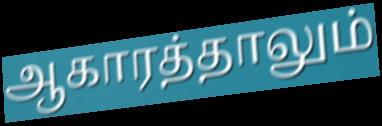
ஆகாரத்தாலும்